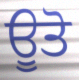
ਊਤੋ